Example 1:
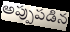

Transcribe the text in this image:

అప్పుపడిన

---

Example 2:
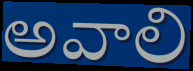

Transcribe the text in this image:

అవాలి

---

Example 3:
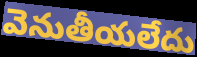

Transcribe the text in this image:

వెనుతీయలేదు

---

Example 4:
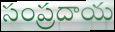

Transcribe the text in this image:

సంప్రదాయ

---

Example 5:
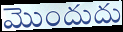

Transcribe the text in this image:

మొందుదు